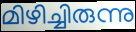
മിഴിച്ചിരുന്നു